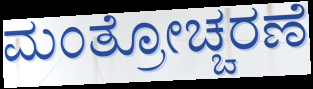
ಮಂತ್ರೋಚ್ಚರಣೆ